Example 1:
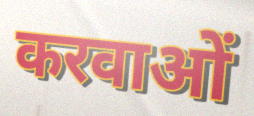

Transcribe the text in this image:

करवाओं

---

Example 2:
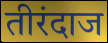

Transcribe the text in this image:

तीरंदाज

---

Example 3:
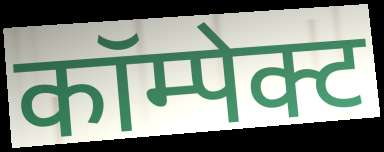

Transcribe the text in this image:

कॉम्पेक्ट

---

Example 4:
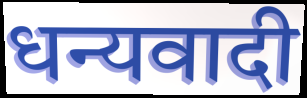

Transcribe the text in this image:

धन्यवादी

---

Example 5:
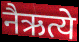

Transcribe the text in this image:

नैऋत्ये